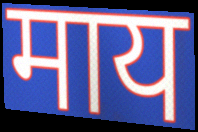
माय